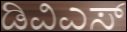
ಡಿವಿಎಸ್